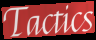
Tactics